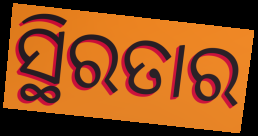
ସ୍ଥିରତାର